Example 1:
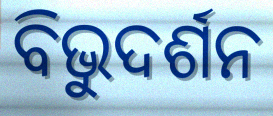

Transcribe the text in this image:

ବିଭୁଦର୍ଶନ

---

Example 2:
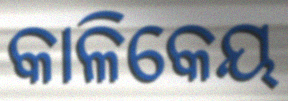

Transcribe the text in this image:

କାଳିକେୟ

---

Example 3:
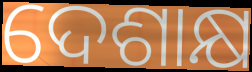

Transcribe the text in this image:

ଦେଶାକ୍ଷ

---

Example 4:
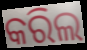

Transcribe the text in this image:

କରିଲ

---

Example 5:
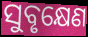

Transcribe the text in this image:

ସୁବୃକ୍ଷେଣ